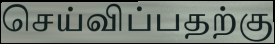
செய்விப்பதற்கு